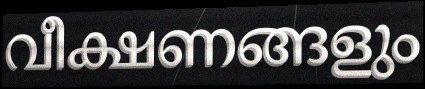
വീക്ഷണങ്ങളും